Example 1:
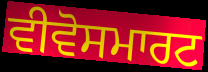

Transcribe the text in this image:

ਵੀਵੋਸਮਾਰਟ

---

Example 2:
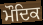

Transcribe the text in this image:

ਮੌਦਿਕ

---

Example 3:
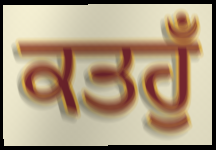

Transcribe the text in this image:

ਕਤਹੁਁ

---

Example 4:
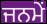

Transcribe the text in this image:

ਜਨਮੇਂ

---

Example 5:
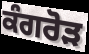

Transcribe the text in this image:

ਕੰਗਰੋੜ